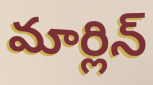
మార్లిన్